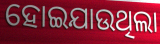
ହୋଇଯାଉଥିଲା